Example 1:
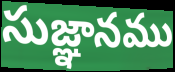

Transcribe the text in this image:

సుజ్ఞానము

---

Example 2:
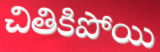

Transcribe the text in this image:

చితికిపోయి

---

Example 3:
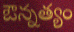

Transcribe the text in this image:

ఔన్నత్యం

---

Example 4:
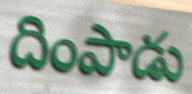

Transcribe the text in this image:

దింపాడు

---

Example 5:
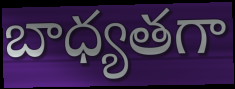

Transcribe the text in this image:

బాధ్యతగా